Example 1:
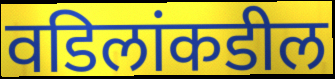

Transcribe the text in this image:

वडिलांकडील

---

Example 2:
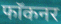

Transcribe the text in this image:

फॉकनर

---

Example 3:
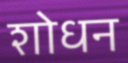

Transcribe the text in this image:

शोधन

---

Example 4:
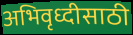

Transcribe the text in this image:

अभिवृध्दीसाठी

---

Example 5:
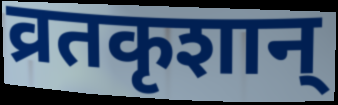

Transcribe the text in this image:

व्रतकृशान्